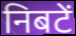
निबटें